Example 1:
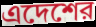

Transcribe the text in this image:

এদেশের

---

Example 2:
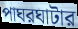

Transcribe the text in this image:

পাঘরঘাটার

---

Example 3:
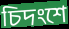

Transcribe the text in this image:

চিদংশে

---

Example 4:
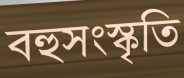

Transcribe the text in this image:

বহুসংস্কৃতি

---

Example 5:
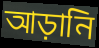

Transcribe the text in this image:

আড়ানি